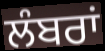
ਲੰਬਰਾਂ